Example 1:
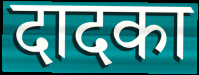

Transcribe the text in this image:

दादका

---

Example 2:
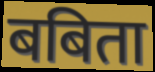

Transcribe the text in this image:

बबिता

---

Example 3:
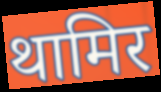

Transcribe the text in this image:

थामिर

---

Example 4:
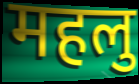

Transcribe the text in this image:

महलु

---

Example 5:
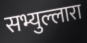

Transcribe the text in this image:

सभ्युल्लारा